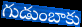
గుడుంబాకు